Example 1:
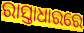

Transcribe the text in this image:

ରାସ୍ତାଧାରରେ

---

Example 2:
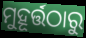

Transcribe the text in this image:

ମୁହୂର୍ତ୍ତଠାରୁ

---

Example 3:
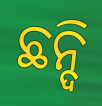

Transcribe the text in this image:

ଛନ୍ଦି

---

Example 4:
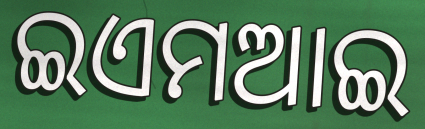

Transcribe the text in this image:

ଇଏମଆଇ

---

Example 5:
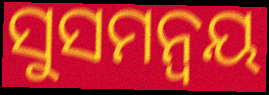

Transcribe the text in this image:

ସୁସମନ୍ୱୟ